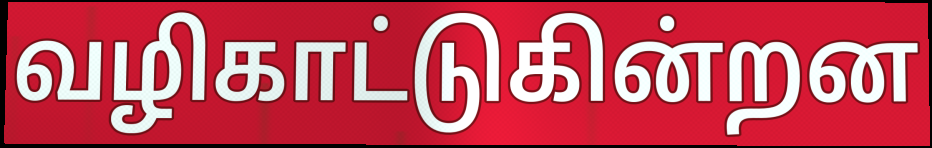
வழிகாட்டுகின்றன